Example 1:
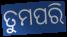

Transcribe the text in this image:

ତୁମପରି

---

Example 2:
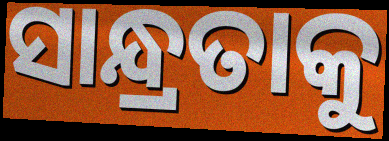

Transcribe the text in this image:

ସାନ୍ଧ୍ରତାକୁ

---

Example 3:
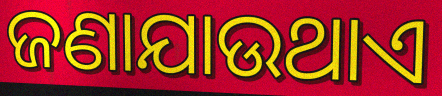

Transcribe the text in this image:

ଜଣାଯାଉଥାଏ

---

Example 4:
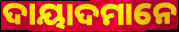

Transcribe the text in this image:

ଦାୟାଦମାନେ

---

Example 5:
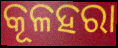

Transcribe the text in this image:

କୂଳହରା